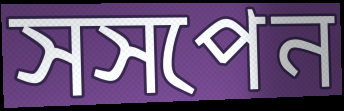
সসপেন